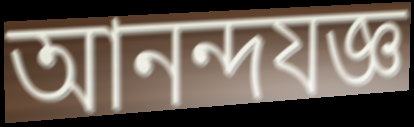
আনন্দযজ্ঞ